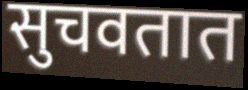
सुचवतात